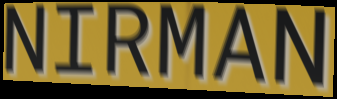
NIRMAN